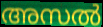
അസൽ